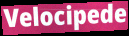
Velocipede